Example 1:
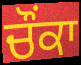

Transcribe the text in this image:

ਚੌੰਕਾ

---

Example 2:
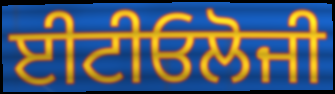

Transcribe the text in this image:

ਈਟੀਓਲੋਜੀ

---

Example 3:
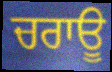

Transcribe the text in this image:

ਚਰਾਊ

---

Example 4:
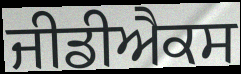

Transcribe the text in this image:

ਜੀਡੀਐਕਸ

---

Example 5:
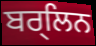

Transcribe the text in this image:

ਬਰ੍ਲਿਨ